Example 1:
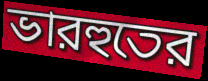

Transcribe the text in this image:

ভারহুতের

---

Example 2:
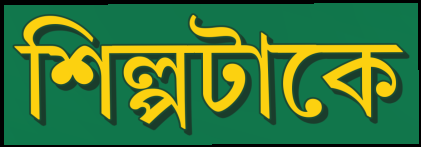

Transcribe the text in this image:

শিল্পটাকে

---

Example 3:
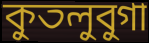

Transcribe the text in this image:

কুতলুবুগা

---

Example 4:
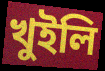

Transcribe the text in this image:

খুইলি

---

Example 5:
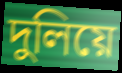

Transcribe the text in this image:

দুলিয়ে